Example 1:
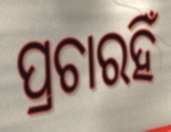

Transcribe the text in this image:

ପ୍ରଚାରହିଁ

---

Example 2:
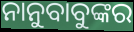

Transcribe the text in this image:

ନାନୁବାବୁଙ୍କର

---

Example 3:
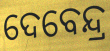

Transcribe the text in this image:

ଦେବେନ୍ଦ୍ର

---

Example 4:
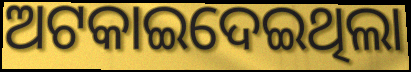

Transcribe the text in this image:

ଅଟକାଇଦେଇଥିଲା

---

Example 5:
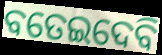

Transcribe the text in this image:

ବତେଇଦେବି